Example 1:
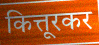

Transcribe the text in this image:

कित्तूरकर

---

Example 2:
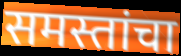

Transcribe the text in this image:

समस्तांचा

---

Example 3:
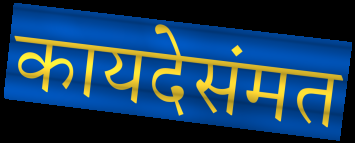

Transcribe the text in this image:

कायदेसंमत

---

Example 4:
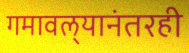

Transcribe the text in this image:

गमावल्यानंतरही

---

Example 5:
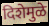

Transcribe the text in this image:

दिशेमुळे